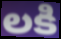
లకి